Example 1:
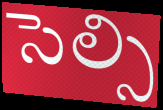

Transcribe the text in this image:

సెల్సి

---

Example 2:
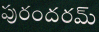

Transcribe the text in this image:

పురందరమ్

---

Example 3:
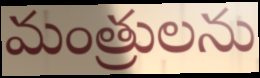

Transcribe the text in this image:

మంత్రులను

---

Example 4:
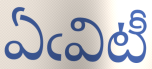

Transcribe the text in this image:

ఏఁవిటీ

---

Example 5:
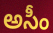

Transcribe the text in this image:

అసీం